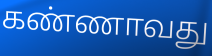
கண்ணாவது